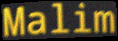
Malim